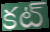
కట్